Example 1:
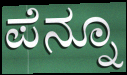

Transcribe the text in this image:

ಪೆನ್ನೂ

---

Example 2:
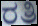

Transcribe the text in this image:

ರತಿ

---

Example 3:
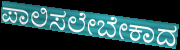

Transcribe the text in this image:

ಪಾಲಿಸಲೇಬೇಕಾದ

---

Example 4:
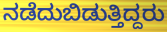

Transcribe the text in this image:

ನಡೆದುಬಿಡುತ್ತಿದ್ದರು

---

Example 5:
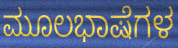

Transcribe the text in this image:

ಮೂಲಭಾಷೆಗಳ